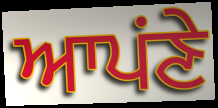
ਆਪਂਣੇ